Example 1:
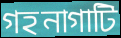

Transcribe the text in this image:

গহনাগাটি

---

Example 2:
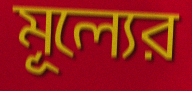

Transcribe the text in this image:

মূল্যের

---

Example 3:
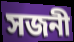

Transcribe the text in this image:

সজনী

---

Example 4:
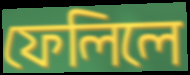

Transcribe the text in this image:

ফেলিলে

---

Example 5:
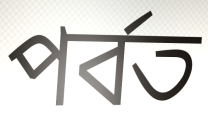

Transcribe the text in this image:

পর্বত